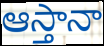
ఆస్తానా